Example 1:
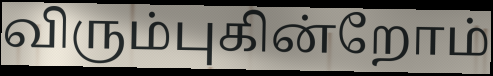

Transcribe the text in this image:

விரும்புகின்றோம்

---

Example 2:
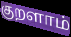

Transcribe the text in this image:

குறளாம்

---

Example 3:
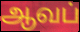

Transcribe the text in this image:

ஆவப்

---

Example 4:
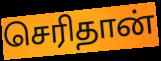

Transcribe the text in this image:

செரிதான்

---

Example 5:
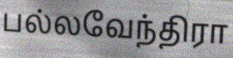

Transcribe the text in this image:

பல்லவேந்திரா